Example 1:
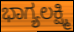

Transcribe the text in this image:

ಭಾಗ್ಯಲಕ್ಷ್ಮಿ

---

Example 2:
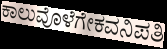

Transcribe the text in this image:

ಕಾಲುವೊಳೆಗೇಕವನಿಪತಿ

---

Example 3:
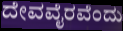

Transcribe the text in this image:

ದೇವವೈರವೆಂದು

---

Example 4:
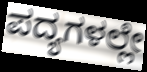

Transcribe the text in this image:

ಪದ್ಯಗಳಲ್ಲೇ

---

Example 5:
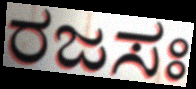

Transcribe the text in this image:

ರಜಸಃ